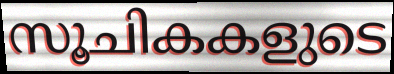
സൂചികകളുടെ